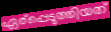
ഏര്പ്പെടുത്തിയത്